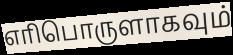
எரிபொருளாகவும்